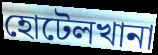
হোটেলখানা